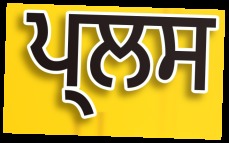
ਪ੍ਲਸ